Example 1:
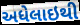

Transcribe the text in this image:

અધેલાઇથી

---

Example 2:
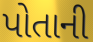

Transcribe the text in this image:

પોતાની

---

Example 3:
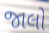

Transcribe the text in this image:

જાલો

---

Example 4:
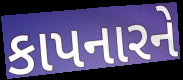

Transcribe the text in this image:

કાપનારને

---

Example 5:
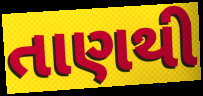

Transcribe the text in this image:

તાણથી